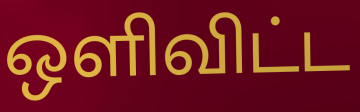
ஒளிவிட்ட